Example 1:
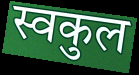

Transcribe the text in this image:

स्वकुल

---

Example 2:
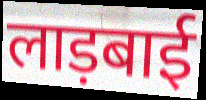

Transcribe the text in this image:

लाड़बाई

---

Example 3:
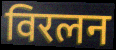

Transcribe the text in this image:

विरलन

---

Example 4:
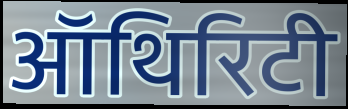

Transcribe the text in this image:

ऑथिरिटी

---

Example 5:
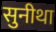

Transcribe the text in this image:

सुनीथा